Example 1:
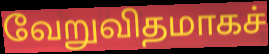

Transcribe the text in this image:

வேறுவிதமாகச்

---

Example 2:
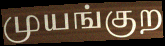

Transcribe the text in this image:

முயங்குற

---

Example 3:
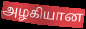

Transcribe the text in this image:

அழகியான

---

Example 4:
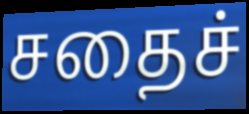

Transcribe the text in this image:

சதைச்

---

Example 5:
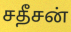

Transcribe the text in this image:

சதீசன்